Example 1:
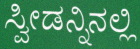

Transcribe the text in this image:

ಸ್ವೀಡನ್ನಿನಲ್ಲಿ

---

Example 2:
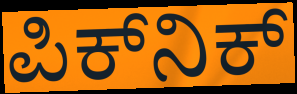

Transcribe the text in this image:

ಪಿಕ್‌ನಿಕ್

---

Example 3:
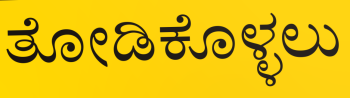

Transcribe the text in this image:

ತೋಡಿಕೊಳ್ಳಲು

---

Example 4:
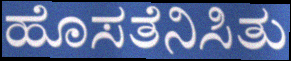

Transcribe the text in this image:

ಹೊಸತೆನಿಸಿತು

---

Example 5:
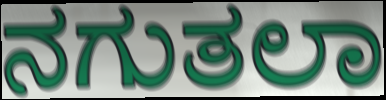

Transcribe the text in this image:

ನಗುತಲಾ